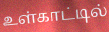
உள்காட்டில்